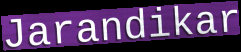
Jarandikar